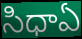
సిధాఏ